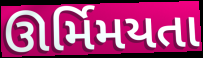
ઊર્મિમયતા